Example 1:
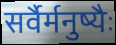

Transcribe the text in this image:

सर्वैर्मनुष्यैः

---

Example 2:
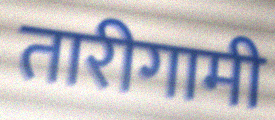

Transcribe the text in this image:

तारीगामी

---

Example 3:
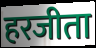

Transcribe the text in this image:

हरजीता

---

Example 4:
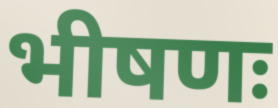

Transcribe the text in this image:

भीषणः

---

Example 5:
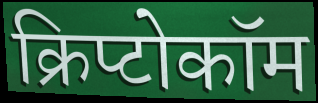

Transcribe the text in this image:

क्रिप्टोकॉम